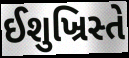
ઈશુખ્રિસ્તે